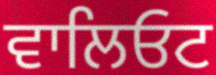
ਵਾਲਿਓਟ